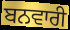
ਬਨਵਾਰੀ